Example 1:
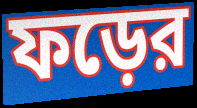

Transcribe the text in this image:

ফড়ের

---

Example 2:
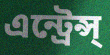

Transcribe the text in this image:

এন্ট্রেন্স্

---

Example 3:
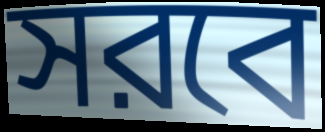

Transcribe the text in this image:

সরবে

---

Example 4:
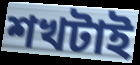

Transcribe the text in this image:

শখটাই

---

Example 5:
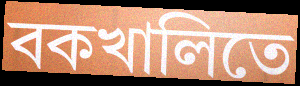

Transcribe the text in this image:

বকখালিতে